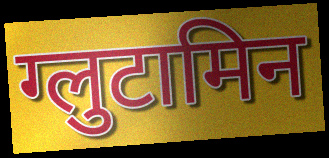
ग्लुटामिन